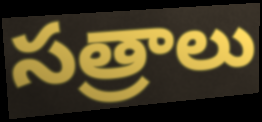
సత్రాలు